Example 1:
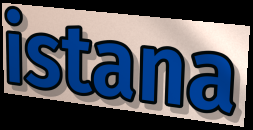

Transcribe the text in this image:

istana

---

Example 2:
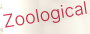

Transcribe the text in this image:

Zoological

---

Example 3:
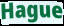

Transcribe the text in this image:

Hague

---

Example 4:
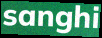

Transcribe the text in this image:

sanghi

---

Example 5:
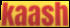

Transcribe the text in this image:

kaash